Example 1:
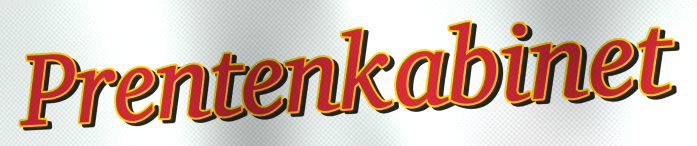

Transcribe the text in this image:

Prentenkabinet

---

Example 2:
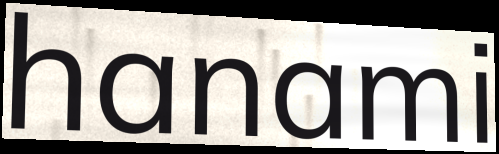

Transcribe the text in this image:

hanami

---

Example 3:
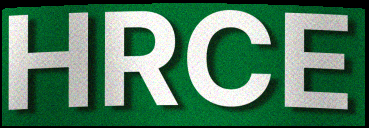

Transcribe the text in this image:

HRCE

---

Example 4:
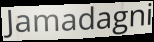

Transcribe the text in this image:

Jamadagni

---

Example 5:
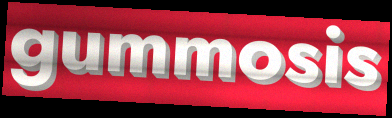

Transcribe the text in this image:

gummosis